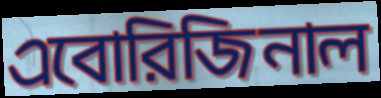
এবোরিজিনাল